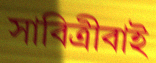
সাবিত্ৰীবাই